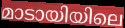
മാടായിയിലെ